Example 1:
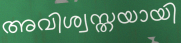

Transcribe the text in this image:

അവിശ്വസ്തയായി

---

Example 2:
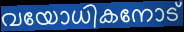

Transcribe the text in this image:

വയോധികനോട്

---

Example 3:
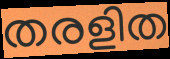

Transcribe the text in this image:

തരളിത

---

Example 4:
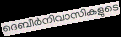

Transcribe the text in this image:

ദെബീർനിവാസികളുടെ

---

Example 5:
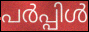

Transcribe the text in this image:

പർപ്പിൾ